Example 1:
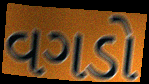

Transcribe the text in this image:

વગડો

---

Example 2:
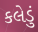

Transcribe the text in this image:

કલેડું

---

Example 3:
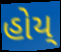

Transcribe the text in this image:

હોય્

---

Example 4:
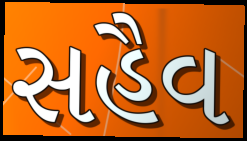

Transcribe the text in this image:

સહૈવ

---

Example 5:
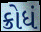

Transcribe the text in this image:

ક્રોધં